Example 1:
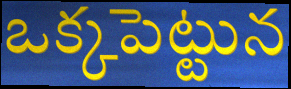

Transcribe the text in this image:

ఒక్కపెట్టున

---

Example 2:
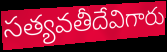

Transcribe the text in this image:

సత్యవతీదేవిగారు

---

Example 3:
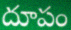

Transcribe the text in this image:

దూపం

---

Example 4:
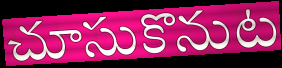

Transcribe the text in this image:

చూసుకొనుట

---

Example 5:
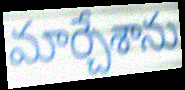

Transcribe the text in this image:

మార్చేశాను